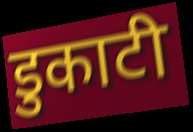
डुकाटी